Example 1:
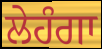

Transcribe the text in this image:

ਲੇਹੰਗਾ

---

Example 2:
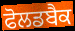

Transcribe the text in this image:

ਫੋਲਡਬੈਕ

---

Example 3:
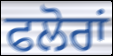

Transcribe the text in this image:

ਫਲੋਰਾਂ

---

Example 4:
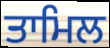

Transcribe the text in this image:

ਤਾਮਿਲ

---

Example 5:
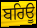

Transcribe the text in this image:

ਬਰਿਊ